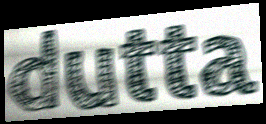
dutta